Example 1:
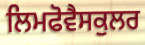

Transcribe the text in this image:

ਲਿਮਫੋਵੈਸਕੁਲਰ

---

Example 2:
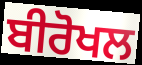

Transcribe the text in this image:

ਬੀਰੋਖਲ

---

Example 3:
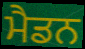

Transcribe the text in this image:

ਮੈਡਨ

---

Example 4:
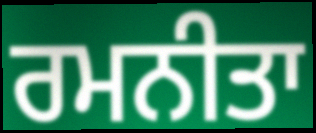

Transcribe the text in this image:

ਰਮਨੀਤਾ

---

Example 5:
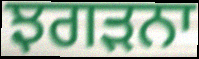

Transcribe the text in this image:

ਝਗੜਨਾ